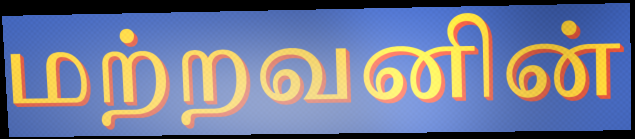
மற்றவனின்